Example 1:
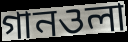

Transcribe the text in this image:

গানওলা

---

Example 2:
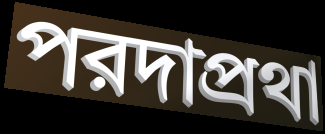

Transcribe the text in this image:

পরদাপ্রথা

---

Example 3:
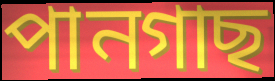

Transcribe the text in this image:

পানগাছ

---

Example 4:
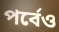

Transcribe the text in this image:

পর্বেও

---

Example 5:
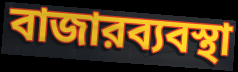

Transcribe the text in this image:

বাজারব্যবস্থা